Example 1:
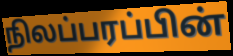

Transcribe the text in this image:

நிலப்பரப்பின்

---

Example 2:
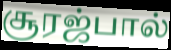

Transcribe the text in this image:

சூரஜ்பால்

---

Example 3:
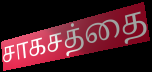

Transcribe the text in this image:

சாகசத்தை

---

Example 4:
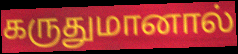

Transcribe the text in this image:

கருதுமானால்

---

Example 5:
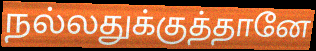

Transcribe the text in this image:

நல்லதுக்குத்தானே